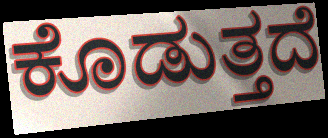
ಕೊಡುತ್ತದೆ